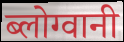
ब्लोग्वानी